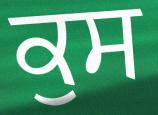
ਕੁਸ